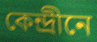
কেন্দ্রীনে